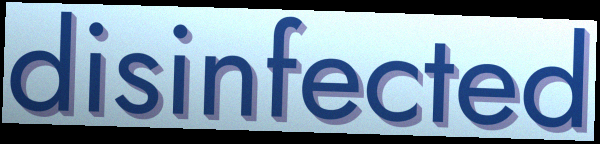
disinfected